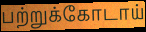
பற்றுக்கோடாய்